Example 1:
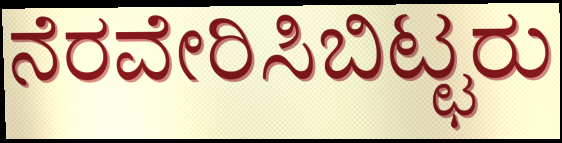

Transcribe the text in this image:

ನೆರವೇರಿಸಿಬಿಟ್ಟರು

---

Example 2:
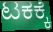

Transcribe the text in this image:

ಟಕಕ್ಕೆ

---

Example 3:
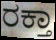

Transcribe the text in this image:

ರಕ್ತಾ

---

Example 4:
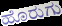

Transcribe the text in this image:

ಹೊರುಗು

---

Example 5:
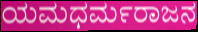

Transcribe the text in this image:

ಯಮಧರ್ಮರಾಜನ